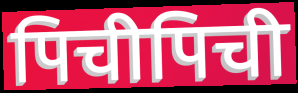
पिचीपिची